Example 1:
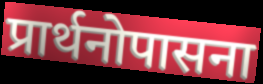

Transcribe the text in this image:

प्रार्थनोपासना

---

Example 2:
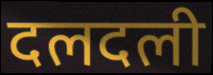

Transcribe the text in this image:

दलदली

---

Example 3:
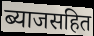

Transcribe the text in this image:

ब्याजसहित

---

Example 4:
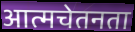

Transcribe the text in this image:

आत्मचेतनता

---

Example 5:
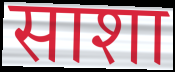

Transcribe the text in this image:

साशा